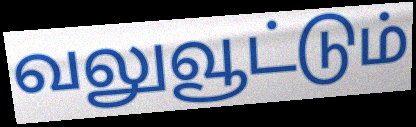
வலுவூட்டும்